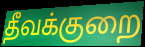
தீவக்குறை